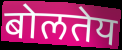
बोलतेय